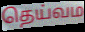
தெய்வம